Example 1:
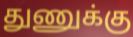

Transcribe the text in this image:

துணுக்கு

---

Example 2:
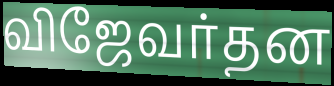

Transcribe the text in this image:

விஜேவர்தன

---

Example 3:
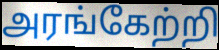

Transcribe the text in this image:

அரங்கேற்றி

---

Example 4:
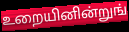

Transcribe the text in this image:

உறையினின்றுங்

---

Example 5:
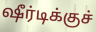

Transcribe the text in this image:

ஷீர்டிக்குச்